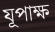
যূপাক্ষ